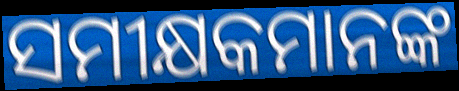
ସମୀକ୍ଷକମାନଙ୍କ